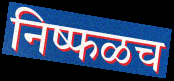
निष्फळच